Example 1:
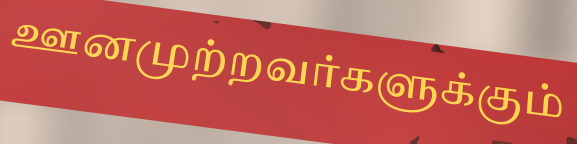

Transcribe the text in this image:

ஊனமுற்றவர்களுக்கும்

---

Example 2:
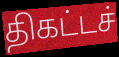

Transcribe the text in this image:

திகட்டச்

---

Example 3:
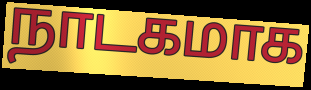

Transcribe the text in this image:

நாடகமாக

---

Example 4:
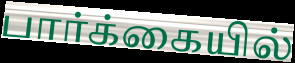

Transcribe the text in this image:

பார்க்கையில்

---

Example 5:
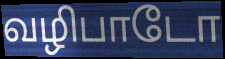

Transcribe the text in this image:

வழிபாடோ